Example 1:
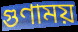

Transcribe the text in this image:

গুণাময়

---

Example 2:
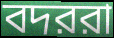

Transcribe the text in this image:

বদররা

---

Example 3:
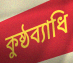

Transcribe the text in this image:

কুষ্ঠব্যাধি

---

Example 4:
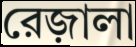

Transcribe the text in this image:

রেজ়ালা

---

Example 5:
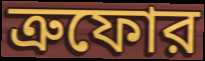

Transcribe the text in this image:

ত্রুফোর